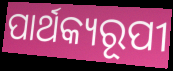
ପାର୍ଥକ୍ୟରୂପୀ